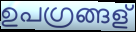
ഉപഗ്രങ്ങള്